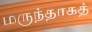
மருந்தாகத்